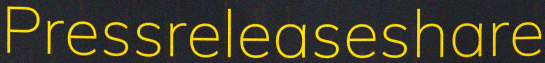
Pressreleaseshare